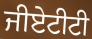
ਜੀਏਟੀਟੀ